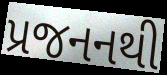
પ્રજનનથી